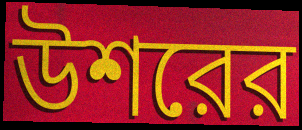
উশরের